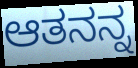
ಆತನನ್ನ